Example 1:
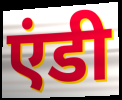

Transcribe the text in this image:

एंडी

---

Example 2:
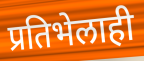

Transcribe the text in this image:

प्रतिभेलाही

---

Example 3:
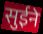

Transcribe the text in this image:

सुईने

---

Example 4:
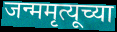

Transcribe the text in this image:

जन्ममृत्यूच्या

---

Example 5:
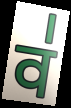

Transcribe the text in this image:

व॑